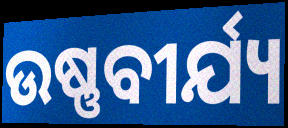
ଉଷ୍ଣବୀର୍ଯ୍ୟ